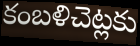
కంబళిచెట్లకు